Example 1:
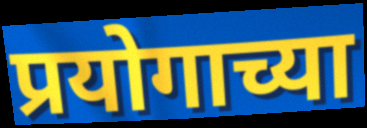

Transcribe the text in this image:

प्रयोगाच्या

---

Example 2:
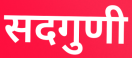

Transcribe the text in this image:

सदगुणी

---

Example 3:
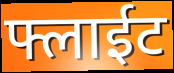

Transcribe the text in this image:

फ्लाईट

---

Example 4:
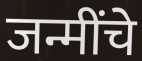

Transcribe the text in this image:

जन्मींचे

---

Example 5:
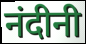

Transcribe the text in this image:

नंदीनी